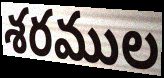
శరముల